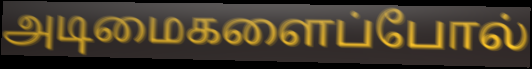
அடிமைகளைப்போல்